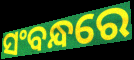
ସଂବନ୍ଧରେ